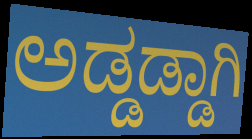
ಅಡ್ಡಡ್ಡಾಗಿ